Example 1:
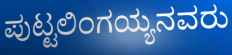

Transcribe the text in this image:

ಪುಟ್ಟಲಿಂಗಯ್ಯನವರು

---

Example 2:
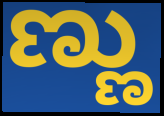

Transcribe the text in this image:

ಣ್ಣು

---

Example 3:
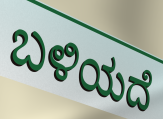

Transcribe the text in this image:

ಬಳಿಯದೆ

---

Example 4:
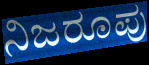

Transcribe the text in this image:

ನಿಜರೂಪು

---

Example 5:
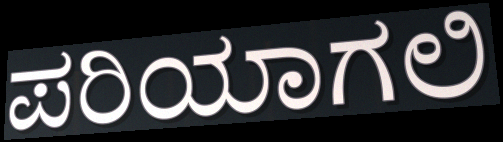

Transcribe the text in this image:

ಪರಿಯಾಗಲಿ